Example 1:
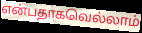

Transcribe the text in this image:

என்பதாகவெல்லாம்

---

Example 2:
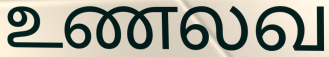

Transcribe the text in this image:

உணலவ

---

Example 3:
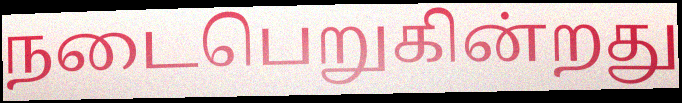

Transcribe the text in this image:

நடைபெறுகின்றது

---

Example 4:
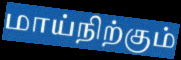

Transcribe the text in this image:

மாய்நிற்கும்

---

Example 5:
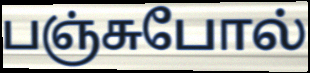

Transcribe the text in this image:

பஞ்சுபோல்